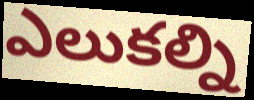
ఎలుకల్ని